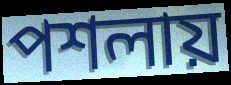
পশলায়